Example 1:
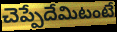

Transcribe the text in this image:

చెప్పేదేమిటంటే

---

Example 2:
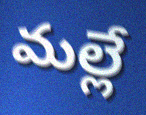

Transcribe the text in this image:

మల్లే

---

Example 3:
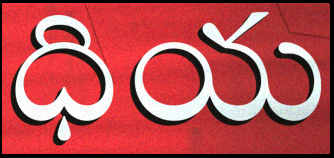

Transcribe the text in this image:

ధియ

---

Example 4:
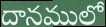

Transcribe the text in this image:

దానములో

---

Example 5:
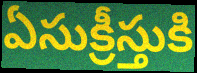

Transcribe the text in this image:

ఏసుక్రీస్తుకి